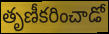
తృణీకరించాడో